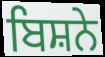
ਬਿਸ਼ਨੇ